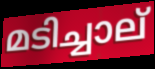
മടിച്ചാല്